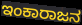
ಇಂಕಾರಾಜನ